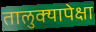
तालुक्यापेक्षा